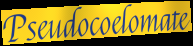
Pseudocoelomate